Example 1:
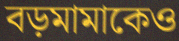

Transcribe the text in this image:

বড়মামাকেও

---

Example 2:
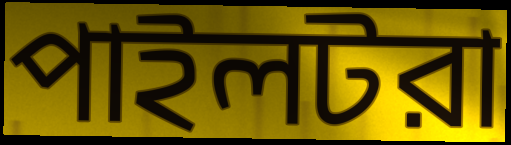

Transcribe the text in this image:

পাইলটরা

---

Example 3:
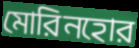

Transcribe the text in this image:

মোরিনহোর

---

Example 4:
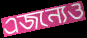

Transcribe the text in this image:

এজন্যেও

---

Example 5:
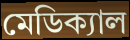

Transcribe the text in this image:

মেডিক্যাল